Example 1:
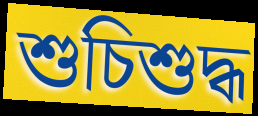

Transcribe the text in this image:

শুচিশুদ্ধ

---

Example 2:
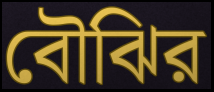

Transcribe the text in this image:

বৌঝির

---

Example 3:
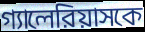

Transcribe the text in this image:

গ্যালেরিয়াসকে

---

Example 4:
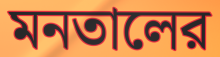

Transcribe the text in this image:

মনতালের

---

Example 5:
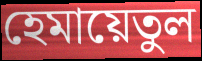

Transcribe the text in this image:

হেমায়েতুল